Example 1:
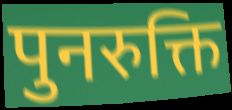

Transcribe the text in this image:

पुनरुक्ति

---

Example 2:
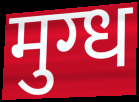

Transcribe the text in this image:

मुग्ध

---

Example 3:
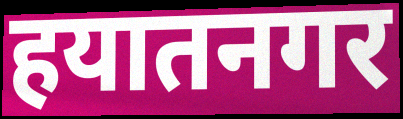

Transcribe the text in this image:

हयातनगर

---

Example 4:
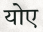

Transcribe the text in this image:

योए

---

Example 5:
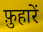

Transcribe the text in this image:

फ़ुहारें